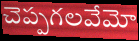
చెప్పగలవేమో